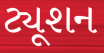
ટ્યૂશન